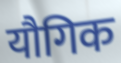
यौगिक